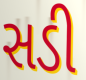
સડી